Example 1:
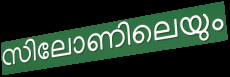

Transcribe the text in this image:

സിലോണിലെയും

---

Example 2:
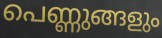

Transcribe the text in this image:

പെണ്ണുങ്ങളും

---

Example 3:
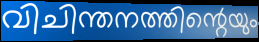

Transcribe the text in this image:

വിചിന്തനത്തിന്റെയും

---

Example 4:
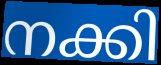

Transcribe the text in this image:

നക്കി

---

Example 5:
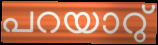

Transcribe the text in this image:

പറയാറു്